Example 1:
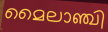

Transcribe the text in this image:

മൈലാഞ്ചി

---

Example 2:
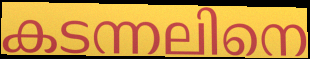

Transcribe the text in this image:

കടന്നലിനെ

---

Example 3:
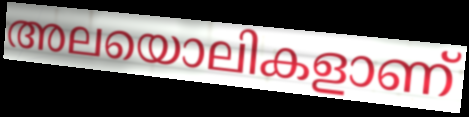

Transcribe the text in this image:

അലയൊലികളാണ്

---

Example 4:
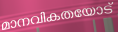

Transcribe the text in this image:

മാനവികതയോട്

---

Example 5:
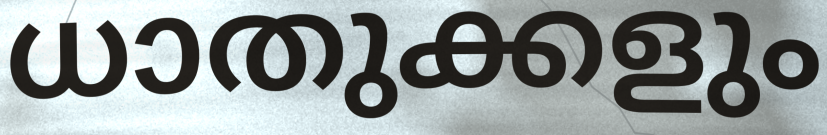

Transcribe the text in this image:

ധാതുക്കളും